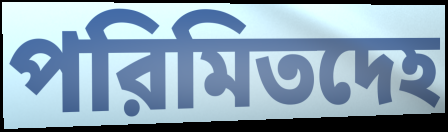
পরিমিতদেহ